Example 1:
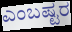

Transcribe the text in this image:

ಎಂಬಷ್ಟರ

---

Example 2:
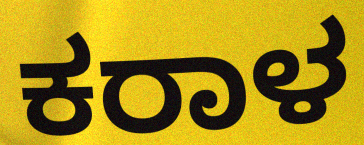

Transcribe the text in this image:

ಕರಾಳ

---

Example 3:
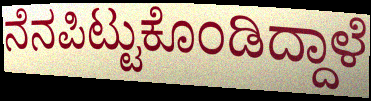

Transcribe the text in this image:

ನೆನಪಿಟ್ಟುಕೊಂಡಿದ್ದಾಳೆ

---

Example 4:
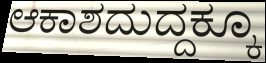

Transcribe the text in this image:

ಆಕಾಶದುದ್ದಕ್ಕೂ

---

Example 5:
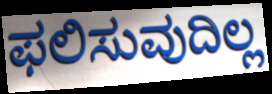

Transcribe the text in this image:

ಫಲಿಸುವುದಿಲ್ಲ